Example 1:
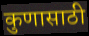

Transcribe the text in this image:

कुणासाठी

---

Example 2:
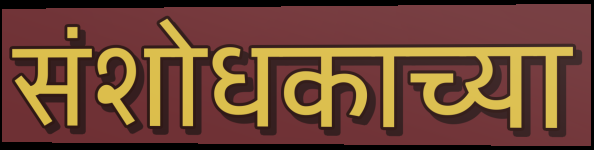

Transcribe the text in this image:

संशोधकाच्या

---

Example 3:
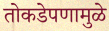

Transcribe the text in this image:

तोकडेपणामुळे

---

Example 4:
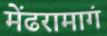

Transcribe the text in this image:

मेंढरामागं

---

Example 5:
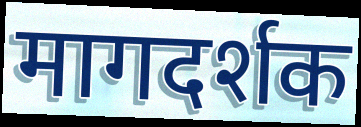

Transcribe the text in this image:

मागदर्शक